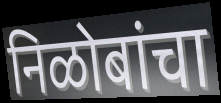
निळोबांचा